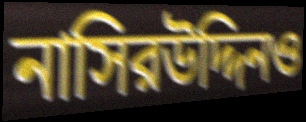
নাসিরউদ্দিনও